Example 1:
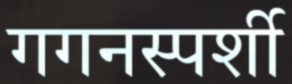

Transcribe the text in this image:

गगनस्पर्शी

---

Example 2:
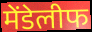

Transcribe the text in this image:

मेंडेलीफ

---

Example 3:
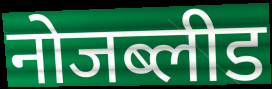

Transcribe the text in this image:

नोजब्लीड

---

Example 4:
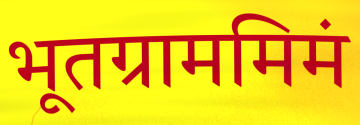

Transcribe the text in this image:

भूतग्राममिमं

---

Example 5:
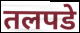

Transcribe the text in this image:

तलपडे